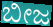
ಬೀಜ